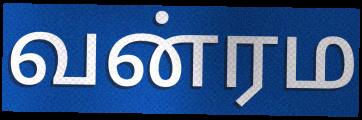
வன்ரம